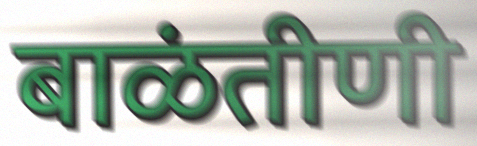
बाळंतीणी